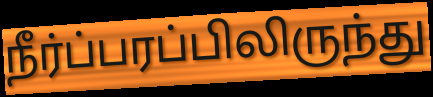
நீர்ப்பரப்பிலிருந்து